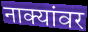
नाक्यांवर